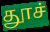
தூச்